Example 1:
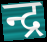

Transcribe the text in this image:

न्द्र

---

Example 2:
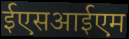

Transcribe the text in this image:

ईएसआईएम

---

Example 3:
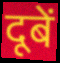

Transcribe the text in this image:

दूबें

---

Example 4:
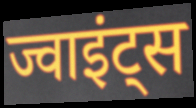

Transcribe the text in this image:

ज्वाइंट्स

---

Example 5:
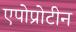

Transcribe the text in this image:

एपोप्रोटीन